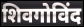
शिवगोविंद